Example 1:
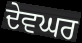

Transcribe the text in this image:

ਦੇਵਘਰ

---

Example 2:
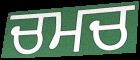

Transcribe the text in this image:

ਚਮਚ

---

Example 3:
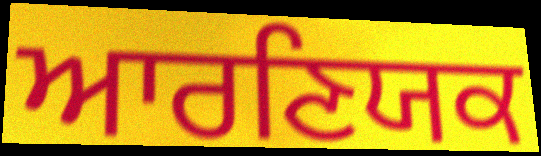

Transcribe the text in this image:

ਆਰਣਿਯਕ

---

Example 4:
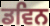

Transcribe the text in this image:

ਡਵਿਨ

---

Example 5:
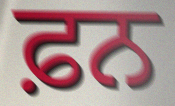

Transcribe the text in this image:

ਫ਼ਨ